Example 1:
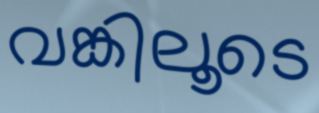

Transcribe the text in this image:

വങ്കിലൂടെ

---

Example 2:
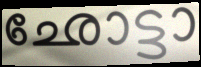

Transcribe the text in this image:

ഛോട്ടാ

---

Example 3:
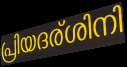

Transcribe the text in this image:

പ്രിയദര്ശിനി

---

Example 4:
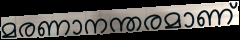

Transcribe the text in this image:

മരണാനന്തരമാണ്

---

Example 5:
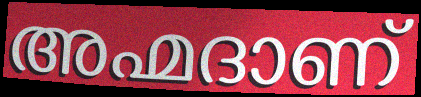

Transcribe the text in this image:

അഹ്മദാണ്